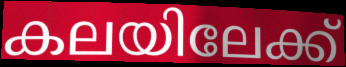
കലയിലേക്ക്